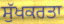
ਸੁੱਖਕਰਤਾ